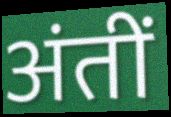
अंतीं